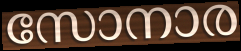
സോനാര